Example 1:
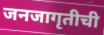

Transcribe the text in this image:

जनजागृतीची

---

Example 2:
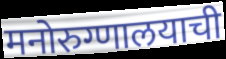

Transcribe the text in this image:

मनोरुग्णालयाची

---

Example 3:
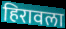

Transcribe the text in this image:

हिरावला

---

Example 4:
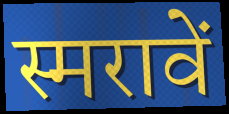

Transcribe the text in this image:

स्मरावें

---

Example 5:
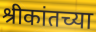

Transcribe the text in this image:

श्रीकांतच्या